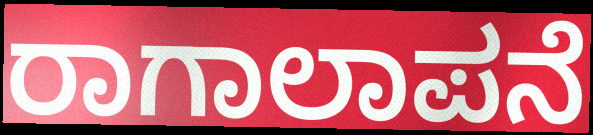
ರಾಗಾಲಾಪನೆ